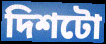
দিশটো